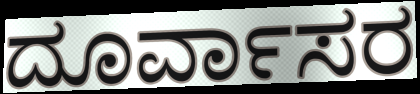
ದೂರ್ವಾಸರ